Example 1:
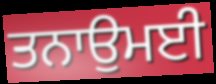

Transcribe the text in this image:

ਤਨਾਉਮਈ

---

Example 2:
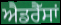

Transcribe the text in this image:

ਐਡਰੈੱਸਾਂ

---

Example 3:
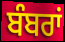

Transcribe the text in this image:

ਬੰਬਰਾਂ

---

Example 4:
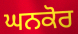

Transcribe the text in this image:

ਘਨਕੋਰ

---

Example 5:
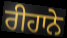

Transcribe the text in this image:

ਰੀਹਾਨੇ